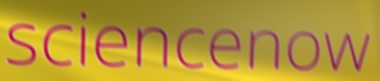
sciencenow